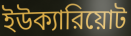
ইউক্যারিয়োট